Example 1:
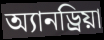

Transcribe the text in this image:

অ্যানড্রিয়া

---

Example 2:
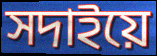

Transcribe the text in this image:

সদাইয়ে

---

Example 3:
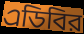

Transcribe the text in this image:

এডিবির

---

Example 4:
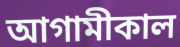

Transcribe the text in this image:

আগামীকাল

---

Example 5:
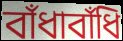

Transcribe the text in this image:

বাঁধাবাঁধি